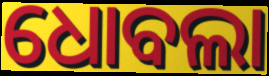
ଧୋବଲା